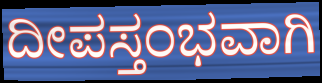
ದೀಪಸ್ತಂಭವಾಗಿ